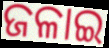
ଜଳାଇ